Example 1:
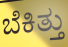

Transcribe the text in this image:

ಬೆಕಿತ್ತು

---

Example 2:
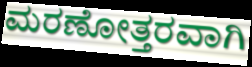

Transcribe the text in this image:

ಮರಣೋತ್ತರವಾಗಿ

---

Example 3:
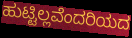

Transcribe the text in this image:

ಹುಟ್ಟಿಲ್ಲವೆಂದರಿಯದ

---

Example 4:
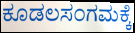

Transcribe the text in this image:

ಕೂಡಲಸಂಗಮಕ್ಕೆ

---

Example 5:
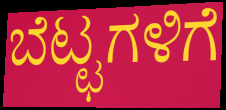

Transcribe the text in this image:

ಬೆಟ್ಟಗಳಿಗೆ